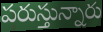
పరుస్తున్నారు